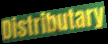
Distributary